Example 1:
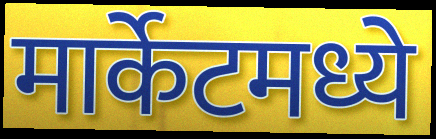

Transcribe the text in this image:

मार्केटमध्ये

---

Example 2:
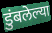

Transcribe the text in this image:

डुंबलेल्या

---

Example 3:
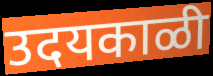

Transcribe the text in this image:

उदयकाळी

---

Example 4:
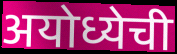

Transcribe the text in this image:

अयोध्येची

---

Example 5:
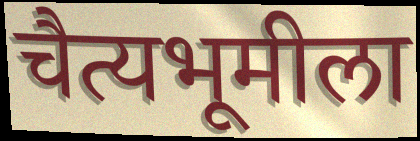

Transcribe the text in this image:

चैत्यभूमीला